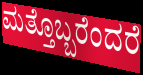
ಮತ್ತೊಬ್ಬರೆಂದರೆ